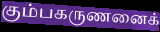
கும்பகருணனைக்